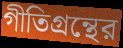
গীতিগ্রন্থের